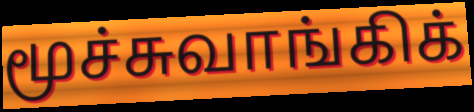
மூச்சுவாங்கிக்